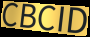
CBCID